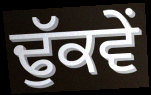
ਢੁੱਕਵੇਂ